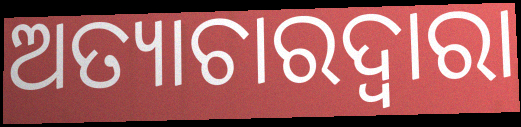
ଅତ୍ୟାଚାରଦ୍ୱାରା